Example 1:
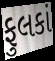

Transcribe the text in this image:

ફુલકાં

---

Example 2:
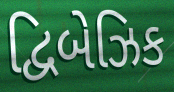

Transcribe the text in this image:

દ્વિબેઝિક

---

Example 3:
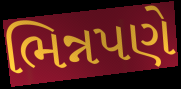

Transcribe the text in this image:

ભિન્નપણે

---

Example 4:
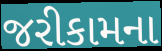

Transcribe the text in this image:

જરીકામના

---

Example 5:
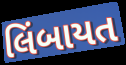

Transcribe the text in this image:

લિંબાયત